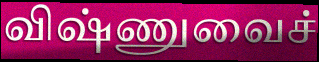
விஷ்ணுவைச்